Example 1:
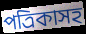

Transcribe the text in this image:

পত্রিকাসহ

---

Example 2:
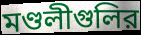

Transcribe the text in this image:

মণ্ডলীগুলির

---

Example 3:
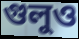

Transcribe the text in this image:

গুলুও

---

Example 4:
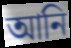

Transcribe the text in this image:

আনি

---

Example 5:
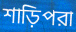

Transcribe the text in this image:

শাড়িপরা